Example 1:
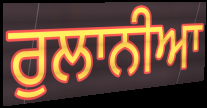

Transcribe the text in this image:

ਰੁਲਾਨੀਆ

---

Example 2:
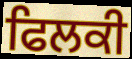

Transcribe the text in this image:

ਫਿਲਕੀ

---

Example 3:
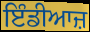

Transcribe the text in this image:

ਇੰਡੀਆਜ਼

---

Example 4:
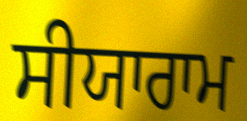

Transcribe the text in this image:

ਸੀਯਾਰਾਮ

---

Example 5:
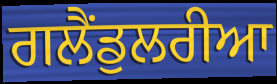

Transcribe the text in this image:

ਗਲੈਂਡੁਲਰੀਆ